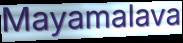
Mayamalava